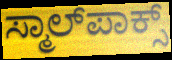
ಸ್ಮಾಲ್‌ಪಾಕ್ಸ್